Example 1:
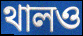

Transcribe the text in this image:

থালও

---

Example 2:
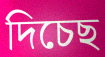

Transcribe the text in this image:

দিচেছ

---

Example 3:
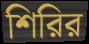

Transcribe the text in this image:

শিরির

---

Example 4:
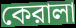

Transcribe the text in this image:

কেরালা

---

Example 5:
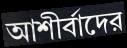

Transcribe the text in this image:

আশীর্বাদের